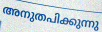
അനുതപിക്കുന്നു